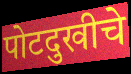
पोटदुखीचे